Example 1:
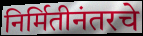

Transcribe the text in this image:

निर्मितीनंतरचे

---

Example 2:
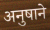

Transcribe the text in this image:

अनुषाने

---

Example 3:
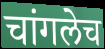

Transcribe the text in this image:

चांगलेच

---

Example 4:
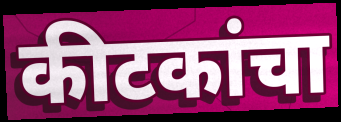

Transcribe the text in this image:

कीटकांचा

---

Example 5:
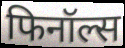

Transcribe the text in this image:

फिनॉल्स